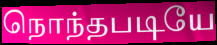
நொந்தபடியே